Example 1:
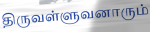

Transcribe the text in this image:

திருவள்ளுவனாரும்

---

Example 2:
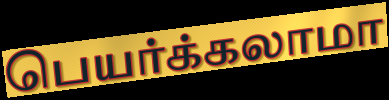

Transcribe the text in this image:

பெயர்க்கலாமா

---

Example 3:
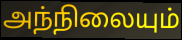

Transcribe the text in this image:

அந்நிலையும்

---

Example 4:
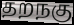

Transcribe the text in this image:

தறநகு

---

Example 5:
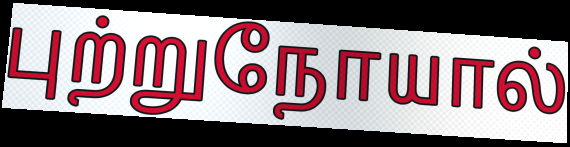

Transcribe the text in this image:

புற்றுநோயால்